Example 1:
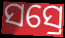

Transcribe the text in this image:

ସସ୍ରେ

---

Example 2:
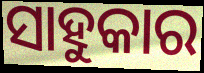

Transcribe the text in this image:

ସାହୁକାର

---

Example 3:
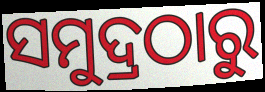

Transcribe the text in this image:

ସମୁଦ୍ରଠାରୁ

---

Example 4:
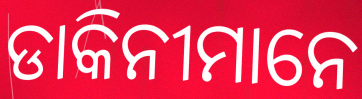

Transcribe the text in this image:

ଡାକିନୀମାନେ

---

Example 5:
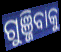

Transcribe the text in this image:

ଗୁଞ୍ଜିବାକୁ